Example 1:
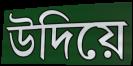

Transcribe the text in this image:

উদিয়ে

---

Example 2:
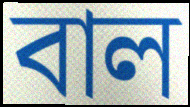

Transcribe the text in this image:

বাল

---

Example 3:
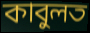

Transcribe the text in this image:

কাবুলত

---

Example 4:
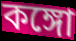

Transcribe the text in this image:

কঙ্গো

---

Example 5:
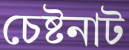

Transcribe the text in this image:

চেষ্টনাট